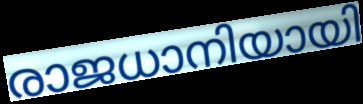
രാജധാനിയായി